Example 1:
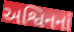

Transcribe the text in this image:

અશ્વિનનાં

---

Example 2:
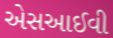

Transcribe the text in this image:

એસઆઈવી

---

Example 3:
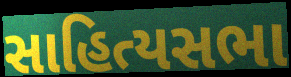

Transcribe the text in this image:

સાહિત્યસભા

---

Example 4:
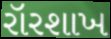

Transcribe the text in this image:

રૉરશાખ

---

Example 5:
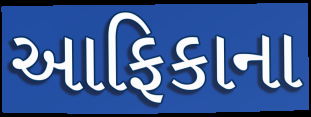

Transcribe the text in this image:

આફિકાના